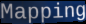
Mapping